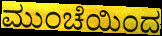
ಮುಂಚೆಯಿಂದ